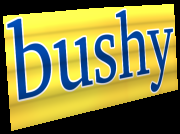
bushy